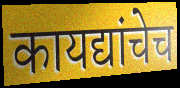
कायद्यांचेच